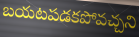
బయటపడకపోవచ్చని